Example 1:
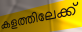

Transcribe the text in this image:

കളത്തിലേക്ക്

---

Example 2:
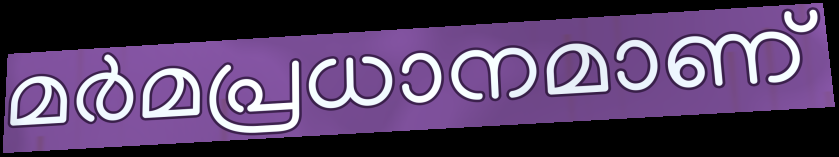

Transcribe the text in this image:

മർമപ്രധാനമാണ്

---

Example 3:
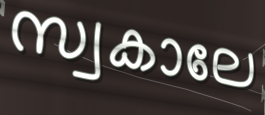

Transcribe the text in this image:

സ്വകാലേ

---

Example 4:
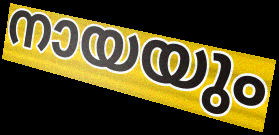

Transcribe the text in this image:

നായയും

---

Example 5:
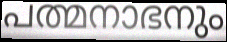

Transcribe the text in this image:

പത്മനാഭനും